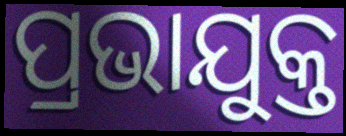
ପ୍ରଭାଯୁକ୍ତ